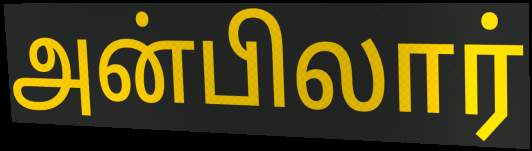
அன்பிலார்